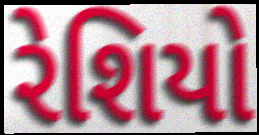
રેશિયો